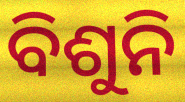
ବିଶୁନି